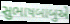
સુભાષબાબુએ